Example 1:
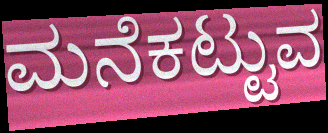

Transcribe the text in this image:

ಮನೆಕಟ್ಟುವ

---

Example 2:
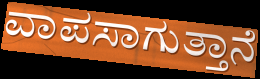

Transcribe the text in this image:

ವಾಪಸಾಗುತ್ತಾನೆ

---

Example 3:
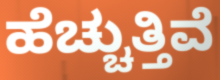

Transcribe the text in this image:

ಹೆಚ್ಚುತ್ತಿವೆ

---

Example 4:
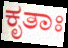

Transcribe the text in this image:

ಕೃತಾಃ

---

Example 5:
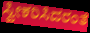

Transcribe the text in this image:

ಸ್ವೀಕರಿಸಿದರಂತೆ